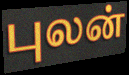
புலன்